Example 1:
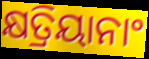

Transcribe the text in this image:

କ୍ଷତ୍ରିୟାନାଂ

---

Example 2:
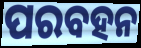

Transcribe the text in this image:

ପରବହନ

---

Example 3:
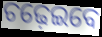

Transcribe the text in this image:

ଚଢ଼େଇବେ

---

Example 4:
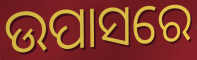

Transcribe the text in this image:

ଉପାସରେ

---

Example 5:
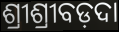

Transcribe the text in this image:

ଶ୍ରୀଶ୍ରୀବଡ଼ଦା